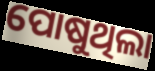
ପୋଷୁଥିଲା